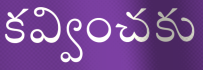
కవ్వించకు